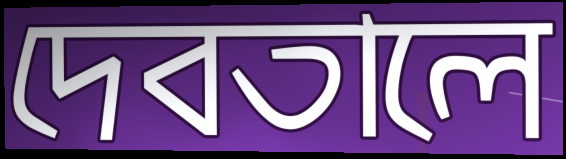
দেবতালে